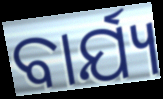
ବାର୍ଯ୍ୟ